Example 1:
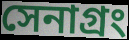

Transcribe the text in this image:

সেনাগ্রং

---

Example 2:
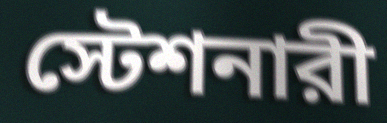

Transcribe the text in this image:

স্টেশনারী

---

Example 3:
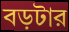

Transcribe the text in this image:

বড়টার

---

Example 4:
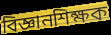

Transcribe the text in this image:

বিজ্ঞানশিক্ষক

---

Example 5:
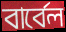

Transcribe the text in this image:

বার্বেল